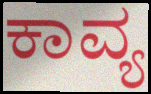
ಕಾವ್ಯ